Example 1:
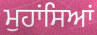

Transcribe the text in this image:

ਮੁਹਾਂਸਿਆਂ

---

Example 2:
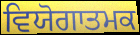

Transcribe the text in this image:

ਵਿਯੋਗਾਤਮਕ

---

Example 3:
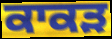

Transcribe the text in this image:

ਕਾਕੜ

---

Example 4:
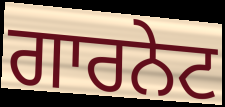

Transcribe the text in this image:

ਗਾਰਨੇਟ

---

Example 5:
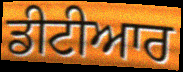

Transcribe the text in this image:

ਡੀਟੀਆਰ